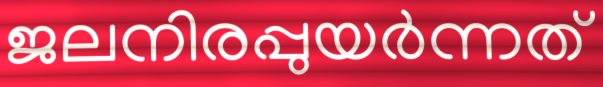
ജലനിരപ്പുയർന്നത്